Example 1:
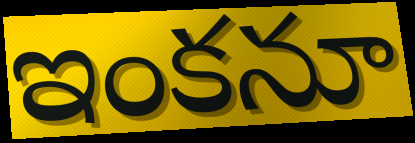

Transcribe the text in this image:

ఇంకనూ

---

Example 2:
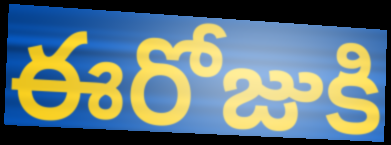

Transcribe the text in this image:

ఈరోజుకి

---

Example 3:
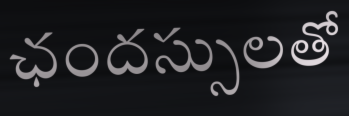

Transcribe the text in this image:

ఛందస్సులతో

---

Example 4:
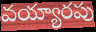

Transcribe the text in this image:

వయ్యారపు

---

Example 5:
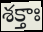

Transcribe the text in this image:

శక్తాః